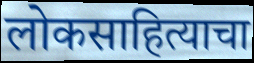
लोकसाहित्याचा